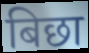
बिछा